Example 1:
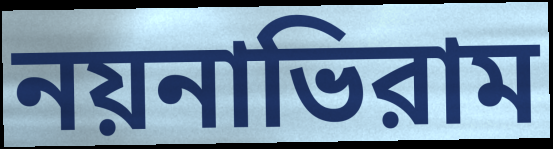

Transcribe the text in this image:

নয়নাভিরাম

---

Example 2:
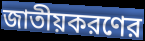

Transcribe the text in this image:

জাতীয়করণের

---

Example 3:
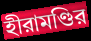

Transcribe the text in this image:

হীরামণ্ডির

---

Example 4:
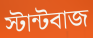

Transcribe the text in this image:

স্টান্টবাজ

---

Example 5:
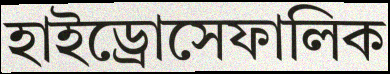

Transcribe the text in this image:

হাইড্রোসেফালিক